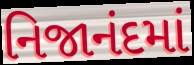
નિજાનંદમાં